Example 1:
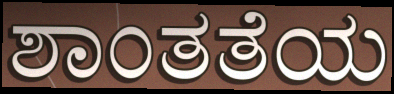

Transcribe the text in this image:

ಶಾಂತತೆಯ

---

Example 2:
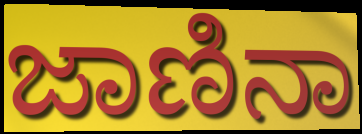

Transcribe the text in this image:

ಜಾಣಿನಾ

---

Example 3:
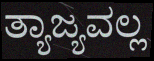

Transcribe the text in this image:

ತ್ಯಾಜ್ಯವಲ್ಲ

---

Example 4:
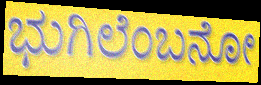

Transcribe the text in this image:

ಭುಗಿಲೆಂಬನೋ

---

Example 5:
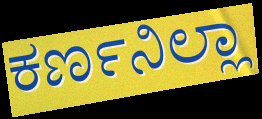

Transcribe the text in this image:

ಕರ್ಣನಿಲ್ಲಾ